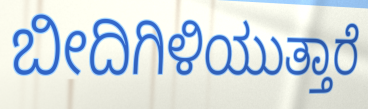
ಬೀದಿಗಿಳಿಯುತ್ತಾರೆ